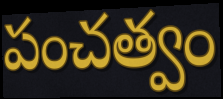
పంచత్వం